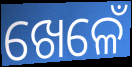
ଖେଳେଁ